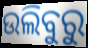
ଉଲିବୁରୁ